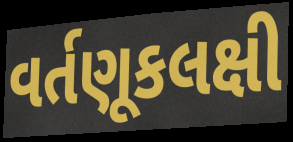
વર્તણૂકલક્ષી